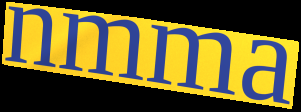
nmma